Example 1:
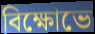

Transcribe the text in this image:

বিক্ষোভে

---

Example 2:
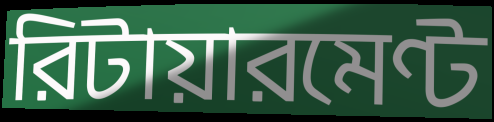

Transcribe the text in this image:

রিটায়ারমেণ্ট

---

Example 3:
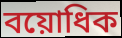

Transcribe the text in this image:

বয়োধিক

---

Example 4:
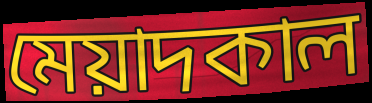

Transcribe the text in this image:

মেয়াদকাল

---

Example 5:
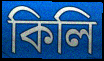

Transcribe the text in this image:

কিলি